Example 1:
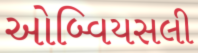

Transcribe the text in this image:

ઓબ્વિયસલી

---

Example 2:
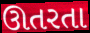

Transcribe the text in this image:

ઊતરતા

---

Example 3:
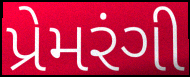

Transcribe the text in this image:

પ્રેમરંગી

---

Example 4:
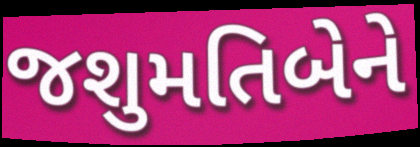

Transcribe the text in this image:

જશુમતિબેને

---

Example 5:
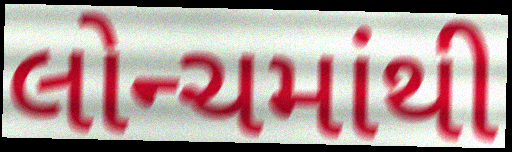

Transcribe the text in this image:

લોન્ચમાંથી